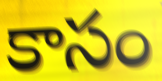
కాసం